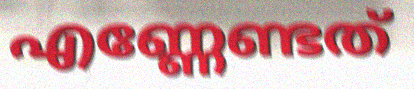
എണ്ണേണ്ടത്